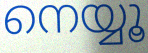
നെയ്യൂ